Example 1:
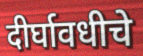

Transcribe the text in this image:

दीर्घावधीचे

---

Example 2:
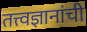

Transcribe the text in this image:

तत्त्वज्ञानांची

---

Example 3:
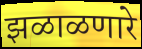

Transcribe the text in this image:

झळाळणारे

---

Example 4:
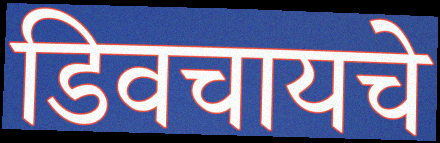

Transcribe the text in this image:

डिवचायचे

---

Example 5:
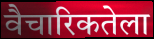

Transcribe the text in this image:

वैचारिकतेला